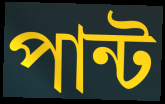
পান্ট